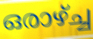
ഒരാഴ്ച്ച